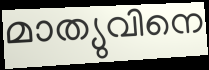
മാത്യുവിനെ